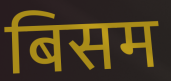
बिसम